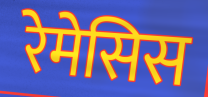
रेमेसिस